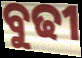
ବୁଢୀ